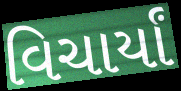
વિચાર્યાં